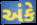
અંકે